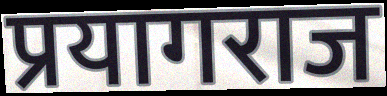
प्रयागराज